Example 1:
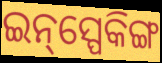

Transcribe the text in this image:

ଇନ୍‌ସ୍ପେକିଙ୍ଗ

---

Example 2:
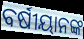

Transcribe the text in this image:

ବର୍ଷୀୟାନଙ୍କ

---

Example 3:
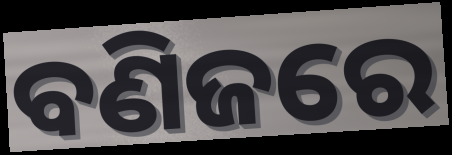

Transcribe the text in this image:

ବଣିଜରେ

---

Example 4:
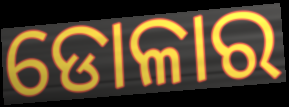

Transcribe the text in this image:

ଡୋଳାର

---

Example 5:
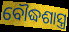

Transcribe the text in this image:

ବୌଦ୍ଧଶାସ୍ତ୍ର